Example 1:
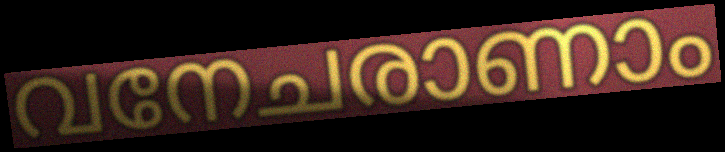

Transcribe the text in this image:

വനേചരാണാം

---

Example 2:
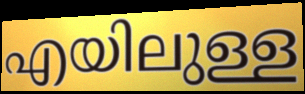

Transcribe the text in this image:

എയിലുള്ള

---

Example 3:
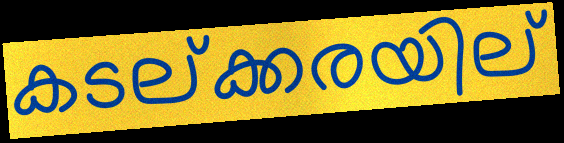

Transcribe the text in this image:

കടല്ക്കരയില്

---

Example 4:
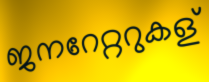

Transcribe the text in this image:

ജനറേറ്ററുകള്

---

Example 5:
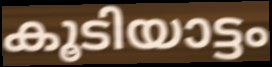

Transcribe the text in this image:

കൂടിയാട്ടം